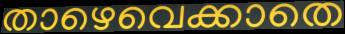
താഴെവെക്കാതെ